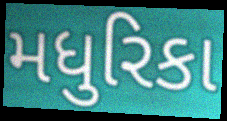
મધુરિકા